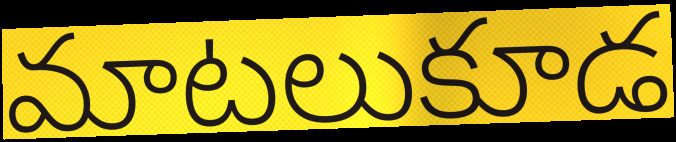
మాటలుకూడ